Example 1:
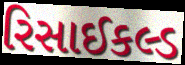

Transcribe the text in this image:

રિસાઈકલ્ડ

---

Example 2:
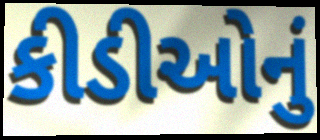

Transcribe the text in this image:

કીડીઓનું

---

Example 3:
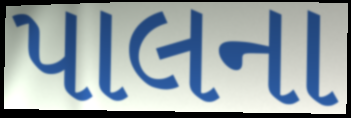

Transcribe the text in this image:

પાલના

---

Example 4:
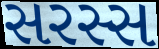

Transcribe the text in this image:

સરસ્સ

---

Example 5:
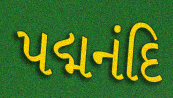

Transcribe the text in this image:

પદ્મનંદિ